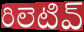
రిలెటివ్